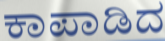
ಕಾಪಾಡಿದ